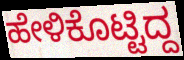
ಹೇಳಿಕೊಟ್ಟಿದ್ದ